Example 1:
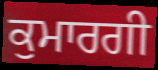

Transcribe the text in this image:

ਕੁਮਾਰਗੀ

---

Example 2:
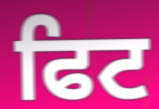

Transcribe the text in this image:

ਫਿਟ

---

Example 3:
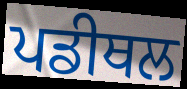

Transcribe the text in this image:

ਪਡੀਥਲ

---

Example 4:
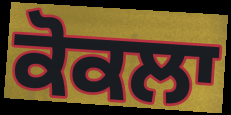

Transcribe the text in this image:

ਕੋਕਲਾ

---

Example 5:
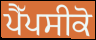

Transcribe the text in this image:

ਪੈੱਪਸੀਕੋ